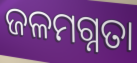
ଜଳମଗ୍ନତା